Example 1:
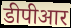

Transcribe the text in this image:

डीपीआर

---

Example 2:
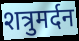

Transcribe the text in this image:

शत्रुमर्दन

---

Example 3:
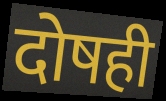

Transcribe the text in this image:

दोषही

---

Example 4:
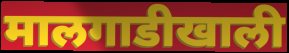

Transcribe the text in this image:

मालगाडीखाली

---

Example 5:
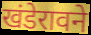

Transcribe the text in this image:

खंडेरावने